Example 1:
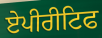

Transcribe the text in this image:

ਏਪੀਰੀਟਿਫ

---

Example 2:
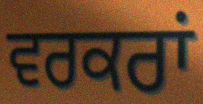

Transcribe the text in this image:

ਵਰਕਰਾਂ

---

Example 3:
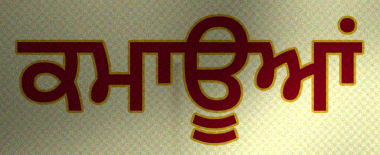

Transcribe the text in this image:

ਕਮਾਊਆਂ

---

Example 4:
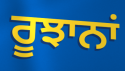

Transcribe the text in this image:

ਰੂਝਾਨਾਂ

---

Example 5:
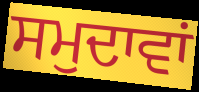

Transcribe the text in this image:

ਸਮੁਦਾਵਾਂ